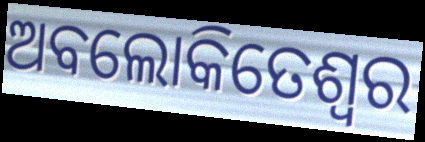
ଅବଲୋକିତେଶ୍ୱର